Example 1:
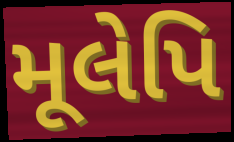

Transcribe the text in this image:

મૂલેપિ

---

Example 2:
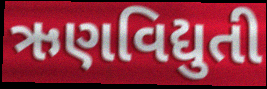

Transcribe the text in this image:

ઋણવિદ્યુતી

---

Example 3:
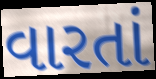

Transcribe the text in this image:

વારતાં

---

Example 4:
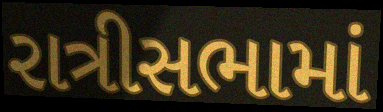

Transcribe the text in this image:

રાત્રીસભામાં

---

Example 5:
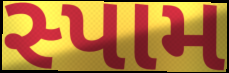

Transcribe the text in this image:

સ્પામ